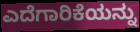
ಎದೆಗಾರಿಕೆಯನ್ನು